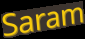
Saram